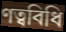
ণত্ববিধি